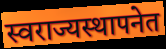
स्वराज्यस्थापनेत